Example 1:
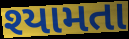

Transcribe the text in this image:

શ્યામતા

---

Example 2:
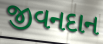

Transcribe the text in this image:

જીવનદાન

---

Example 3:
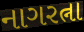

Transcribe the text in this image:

નાગરત્ના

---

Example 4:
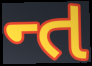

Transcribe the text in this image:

ન્ત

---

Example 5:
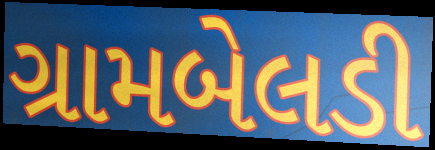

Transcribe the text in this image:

ગ્રામબેલડી